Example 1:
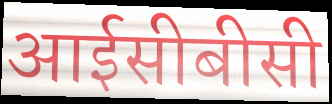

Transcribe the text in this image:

आईसीबीसी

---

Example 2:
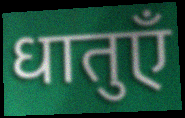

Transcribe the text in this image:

धातुएँ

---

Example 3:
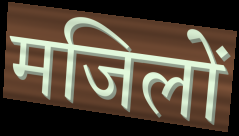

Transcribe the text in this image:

मजिलों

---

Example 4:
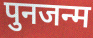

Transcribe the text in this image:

पुनजन्म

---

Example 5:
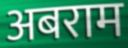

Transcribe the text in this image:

अबराम